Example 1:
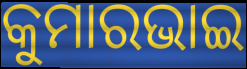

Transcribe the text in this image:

କୁମାରଭାଇ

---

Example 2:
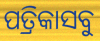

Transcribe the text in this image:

ପତ୍ରିକାସବୁ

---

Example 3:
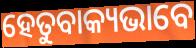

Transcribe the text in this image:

ହେତୁବାକ୍ୟଭାବେ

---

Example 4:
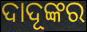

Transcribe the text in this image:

ଦାଦୂଙ୍କର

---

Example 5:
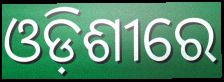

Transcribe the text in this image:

ଓଡ଼ିଶୀରେ